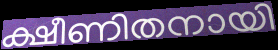
ക്ഷീണിതനായി